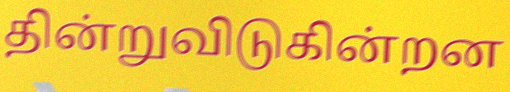
தின்றுவிடுகின்றன